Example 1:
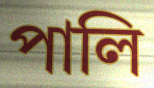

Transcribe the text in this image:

পালি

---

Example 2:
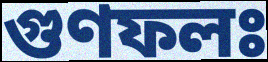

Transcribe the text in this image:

গুণফলঃ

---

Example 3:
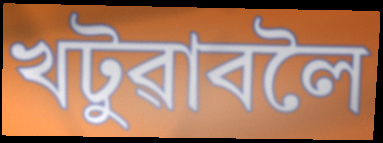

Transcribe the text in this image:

খটুৱাবলৈ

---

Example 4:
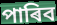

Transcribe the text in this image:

পাৰিব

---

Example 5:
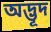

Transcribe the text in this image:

অদ্ভূদ